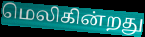
மெலிகின்றது